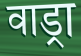
वाड्रा